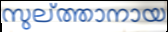
സുല്ത്താനായ